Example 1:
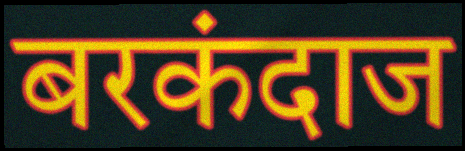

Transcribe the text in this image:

बरकंदाज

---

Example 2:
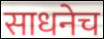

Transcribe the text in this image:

साधनेच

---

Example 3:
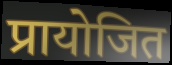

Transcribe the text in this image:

प्रायोजित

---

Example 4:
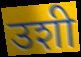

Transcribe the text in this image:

उशी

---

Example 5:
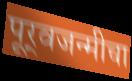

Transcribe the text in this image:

पूर्वजन्मीचा